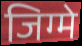
जिग्मे